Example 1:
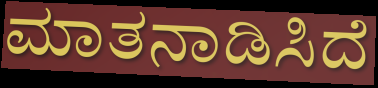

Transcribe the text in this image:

ಮಾತನಾಡಿಸಿದೆ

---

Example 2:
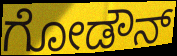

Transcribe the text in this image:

ಗೋಡೌನ್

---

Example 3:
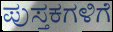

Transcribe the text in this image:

ಪುಸ್ತಕಗಳಿಗೆ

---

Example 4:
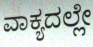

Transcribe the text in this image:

ವಾಕ್ಯದಲ್ಲೇ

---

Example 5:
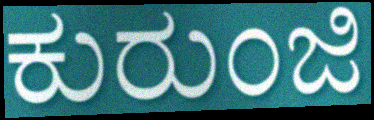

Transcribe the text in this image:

ಕುರುಂಜಿ